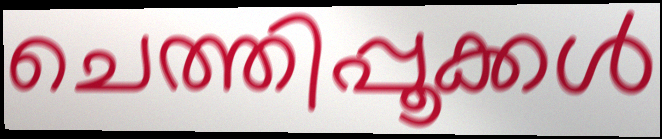
ചെത്തിപ്പൂക്കൾ